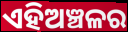
ଏହିଅଞ୍ଚଳର